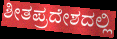
ಶೀತಪ್ರದೇಶದಲ್ಲಿ